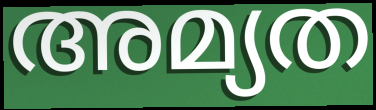
അമ്യത